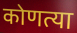
कोणत्या